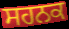
ਸਹਨਕ